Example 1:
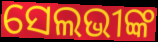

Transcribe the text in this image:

ସେଲଭୀଙ୍କ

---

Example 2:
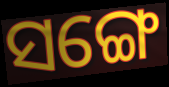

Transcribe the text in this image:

ସଙ୍ଗେ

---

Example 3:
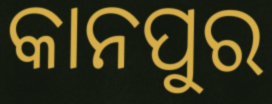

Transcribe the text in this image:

କାନପୁର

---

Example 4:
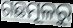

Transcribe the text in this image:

ଗଛମୂଳରୁ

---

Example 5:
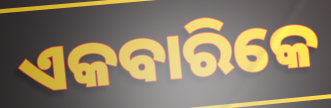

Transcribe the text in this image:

ଏକବାରିକେ